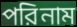
পরিনাম